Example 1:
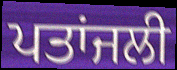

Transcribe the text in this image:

ਪਤਾਂਜਲੀ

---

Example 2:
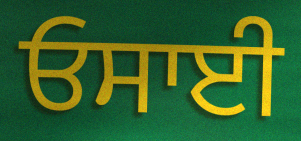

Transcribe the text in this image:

ਓਸਾਈ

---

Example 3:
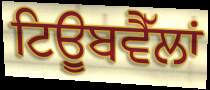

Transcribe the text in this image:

ਟਿਊੁਬਵੈੱਲਾਂ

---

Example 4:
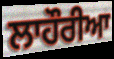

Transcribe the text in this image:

ਲਾਹੌਰੀਆ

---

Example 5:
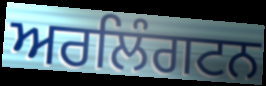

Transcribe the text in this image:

ਅਰਲਿੰਗਟਨ